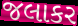
જલાકર